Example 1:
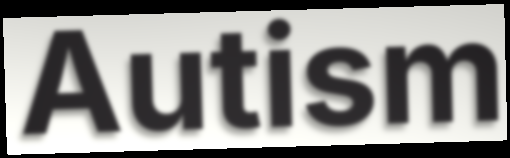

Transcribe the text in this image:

Autism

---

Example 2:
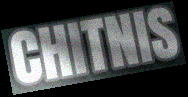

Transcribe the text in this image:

CHITNIS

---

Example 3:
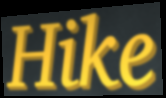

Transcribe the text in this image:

Hike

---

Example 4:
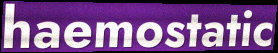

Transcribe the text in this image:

haemostatic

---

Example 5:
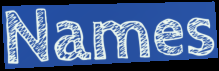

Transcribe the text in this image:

Names